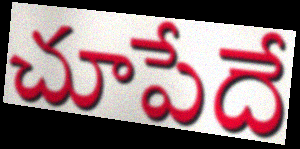
చూపేదే